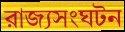
রাজ্যসংঘটন